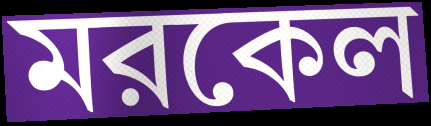
মরকেল